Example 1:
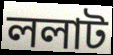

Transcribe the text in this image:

ললাট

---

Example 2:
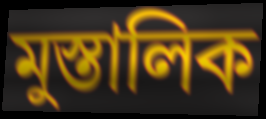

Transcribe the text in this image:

মুস্তালিক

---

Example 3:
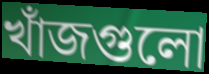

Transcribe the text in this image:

খাঁজগুলো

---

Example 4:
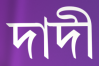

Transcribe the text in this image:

দাদী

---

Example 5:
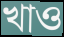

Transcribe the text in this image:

খাও